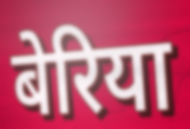
बेरिया